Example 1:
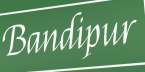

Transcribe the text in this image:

Bandipur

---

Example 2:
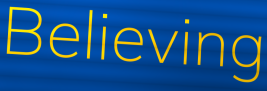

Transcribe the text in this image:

Believing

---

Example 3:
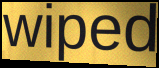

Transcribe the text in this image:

wiped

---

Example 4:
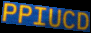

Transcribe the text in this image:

PPIUCD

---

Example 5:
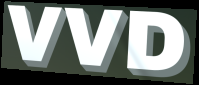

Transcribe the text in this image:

VVD